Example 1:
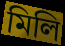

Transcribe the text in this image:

মিলি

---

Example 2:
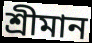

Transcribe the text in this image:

শ্ৰীমান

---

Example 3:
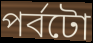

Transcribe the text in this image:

পৰ্বটো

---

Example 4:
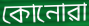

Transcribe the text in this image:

কোনোৱা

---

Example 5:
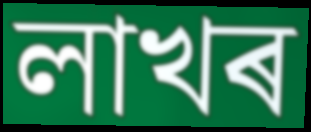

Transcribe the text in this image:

লাখৰ